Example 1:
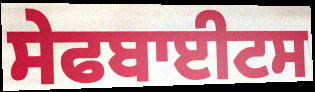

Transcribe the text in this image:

ਸੇਫਬਾਈਟਸ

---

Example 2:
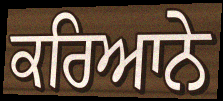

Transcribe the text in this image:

ਕਰਿਆਨੇ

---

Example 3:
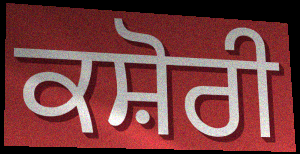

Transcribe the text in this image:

ਕਸ਼ੋਰੀ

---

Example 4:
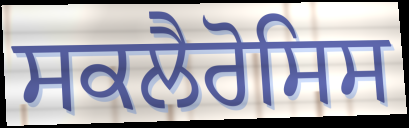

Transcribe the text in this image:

ਸਕਲੈਰੋਸਿਸ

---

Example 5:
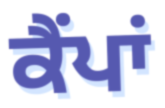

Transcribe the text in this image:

ਕੈੰਪਾਂ